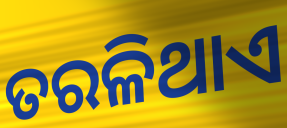
ତରଳିଥାଏ